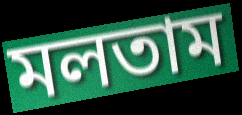
মলতাম